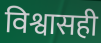
विश्वासही